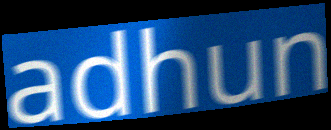
adhun